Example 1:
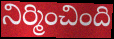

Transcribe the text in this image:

నిర్మించింది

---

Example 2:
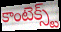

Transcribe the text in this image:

కాంటెక్స్ట్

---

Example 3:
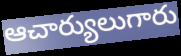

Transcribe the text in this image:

ఆచార్యులుగారు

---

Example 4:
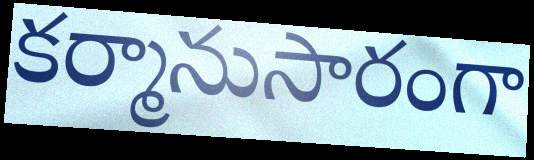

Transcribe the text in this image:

కర్మానుసారంగా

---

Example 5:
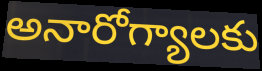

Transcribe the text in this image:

అనారోగ్యాలకు